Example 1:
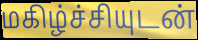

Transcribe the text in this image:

மகிழ்ச்சியுடன்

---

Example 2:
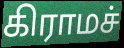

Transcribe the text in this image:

கிராமச்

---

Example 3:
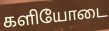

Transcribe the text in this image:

களியோடை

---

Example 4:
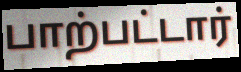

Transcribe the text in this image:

பாற்பட்டார்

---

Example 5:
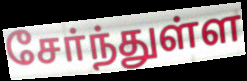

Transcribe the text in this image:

சேர்ந்துள்ள